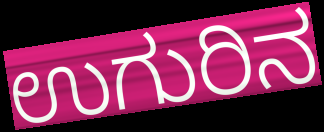
ಉಗುರಿನ